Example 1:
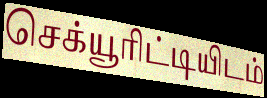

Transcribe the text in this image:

செக்யூரிட்டியிடம்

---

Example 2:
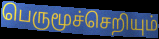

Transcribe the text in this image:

பெருமூச்செறியும்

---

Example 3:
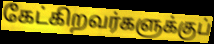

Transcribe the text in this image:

கேட்கிறவர்களுக்குப்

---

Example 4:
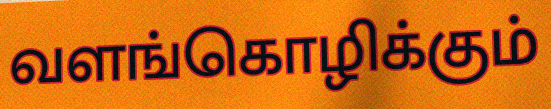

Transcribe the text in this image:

வளங்கொழிக்கும்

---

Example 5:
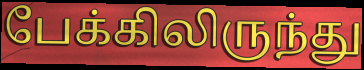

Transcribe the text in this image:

பேக்கிலிருந்து